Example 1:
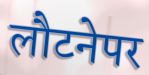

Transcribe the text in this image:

लौटनेपर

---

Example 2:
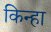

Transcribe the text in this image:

किन्हा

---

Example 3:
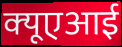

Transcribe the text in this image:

क्यूएआई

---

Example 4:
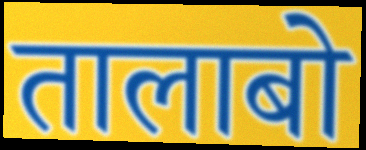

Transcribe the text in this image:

तालाबो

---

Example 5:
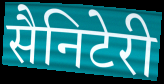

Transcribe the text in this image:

सैनिटेरी